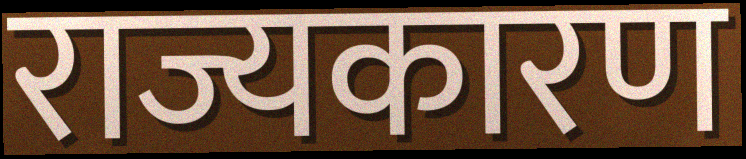
राज्यकारण